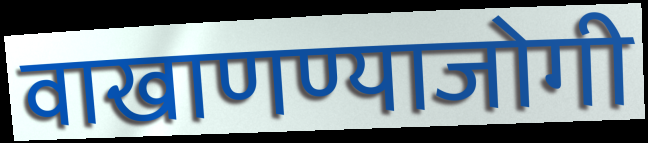
वाखाणण्याजोगी